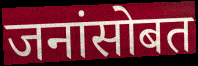
जनांसोबत